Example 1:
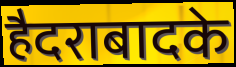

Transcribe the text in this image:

हैदराबादके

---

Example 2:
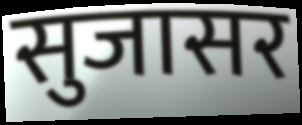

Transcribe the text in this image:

सुजासर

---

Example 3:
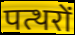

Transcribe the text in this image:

पत्थरों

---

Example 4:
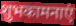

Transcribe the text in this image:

शुभकामनाएं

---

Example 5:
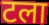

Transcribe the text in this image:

टला